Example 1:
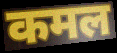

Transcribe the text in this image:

कमल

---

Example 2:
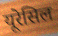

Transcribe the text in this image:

यूरेसिल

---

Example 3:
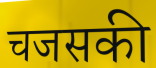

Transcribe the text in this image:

चजसकी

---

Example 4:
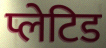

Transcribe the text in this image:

प्लेटिड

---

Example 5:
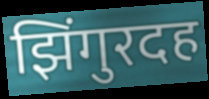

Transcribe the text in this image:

झिंगुरदह